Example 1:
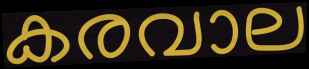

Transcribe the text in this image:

കരവാല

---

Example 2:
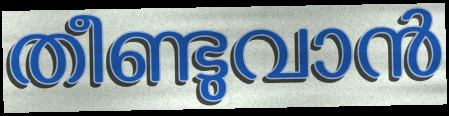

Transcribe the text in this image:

തീണ്ടുവാൻ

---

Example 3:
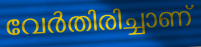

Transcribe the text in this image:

വേർതിരിച്ചാണ്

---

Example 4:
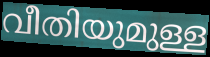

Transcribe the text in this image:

വീതിയുമുള്ള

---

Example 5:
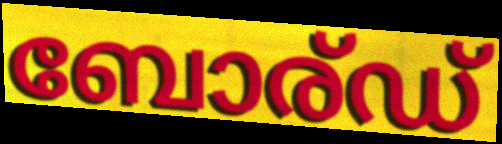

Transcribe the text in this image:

ബോര്ഡ്